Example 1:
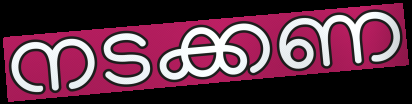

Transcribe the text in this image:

നടക്കണ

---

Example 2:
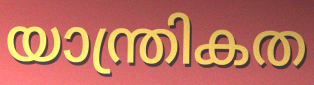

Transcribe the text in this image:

യാന്ത്രികത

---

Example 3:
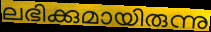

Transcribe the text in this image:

ലഭിക്കുമായിരുന്നു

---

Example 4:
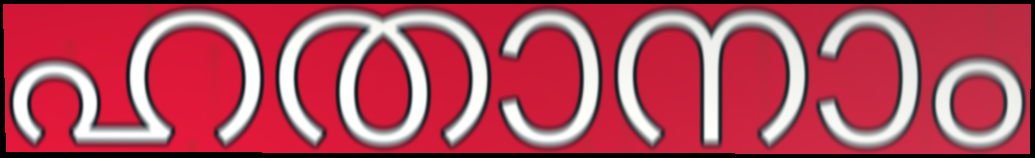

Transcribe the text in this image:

ഹതാനാം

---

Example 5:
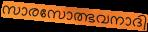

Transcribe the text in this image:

സാരസോത്ഭവനാദി